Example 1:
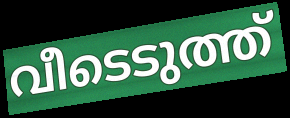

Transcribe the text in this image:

വീടെടുത്ത്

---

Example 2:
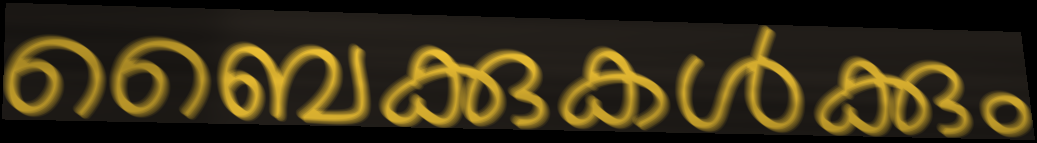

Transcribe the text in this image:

ബൈക്കുകൾക്കും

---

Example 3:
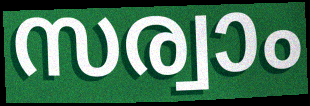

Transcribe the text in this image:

സര്വാം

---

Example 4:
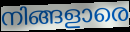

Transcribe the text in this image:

നിങ്ങളാരെ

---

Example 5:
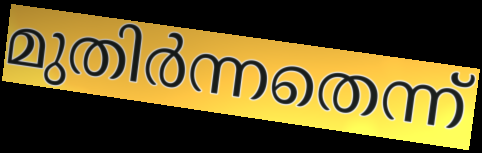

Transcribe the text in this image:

മുതിർന്നതെന്ന്